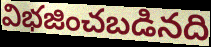
విభజించబడినది